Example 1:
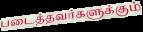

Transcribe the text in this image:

படைத்தவர்களுக்கும்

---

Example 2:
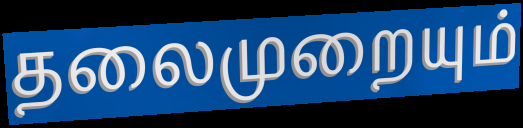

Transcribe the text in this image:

தலைமுறையும்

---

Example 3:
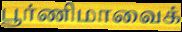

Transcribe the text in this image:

பூர்ணிமாவைக்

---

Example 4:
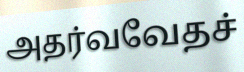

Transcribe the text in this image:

அதர்வவேதச்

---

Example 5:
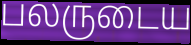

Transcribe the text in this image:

பலருடைய